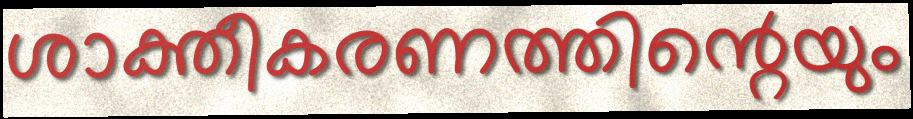
ശാക്തീകരണത്തിന്റെയും